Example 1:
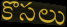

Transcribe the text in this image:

కొసలు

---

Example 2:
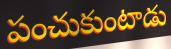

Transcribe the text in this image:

పంచుకుంటాడు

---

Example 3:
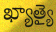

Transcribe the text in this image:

ఖ్యాత్యై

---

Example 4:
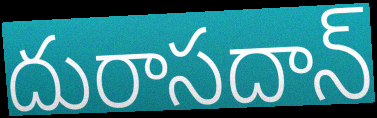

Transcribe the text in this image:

దురాసదాన్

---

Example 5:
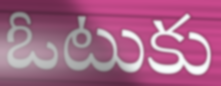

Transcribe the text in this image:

ఓటుకు